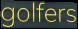
golfers